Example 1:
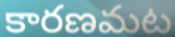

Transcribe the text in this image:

కారణమట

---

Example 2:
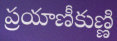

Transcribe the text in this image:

ప్రయాణీకుణ్ణి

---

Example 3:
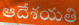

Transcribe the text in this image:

ఆదేశయతి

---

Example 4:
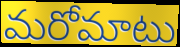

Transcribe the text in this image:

మరోమాటు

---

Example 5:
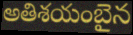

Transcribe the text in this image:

అతిశయంబైన